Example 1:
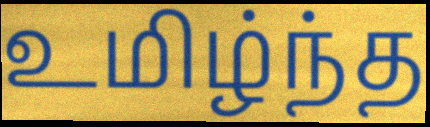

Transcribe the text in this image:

உமிழ்ந்த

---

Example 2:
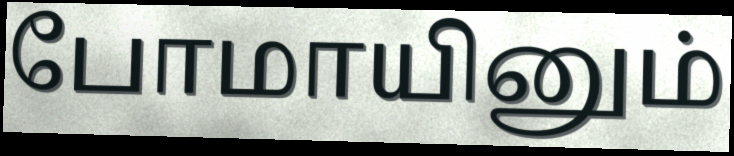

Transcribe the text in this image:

போமாயினும்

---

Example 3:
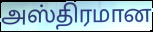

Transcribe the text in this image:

அஸ்திரமான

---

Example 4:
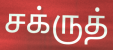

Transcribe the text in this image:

சக்ருத்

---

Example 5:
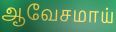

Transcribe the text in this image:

ஆவேசமாய்